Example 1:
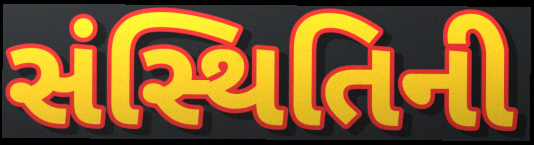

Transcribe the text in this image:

સંસ્થિતિની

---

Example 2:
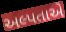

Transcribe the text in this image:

અલ્પતાએ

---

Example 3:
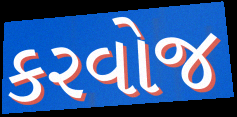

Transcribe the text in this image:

કરવોજ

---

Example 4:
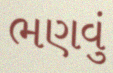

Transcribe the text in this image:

ભણવું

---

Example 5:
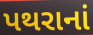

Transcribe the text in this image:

પથરાનાં